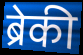
ब्रेकी